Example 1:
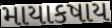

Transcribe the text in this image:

માયાકષાય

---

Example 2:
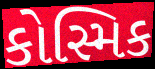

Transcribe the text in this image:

કોસ્મિક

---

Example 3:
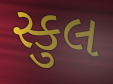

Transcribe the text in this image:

સ્કુલ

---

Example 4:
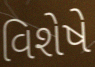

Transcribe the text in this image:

વિશેષે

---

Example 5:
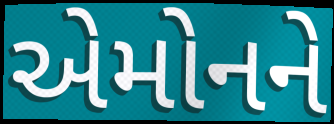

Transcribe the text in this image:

એમોનને